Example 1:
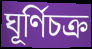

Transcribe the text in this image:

ঘূর্ণিচক্র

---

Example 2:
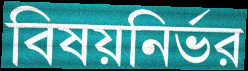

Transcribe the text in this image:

বিষয়নির্ভর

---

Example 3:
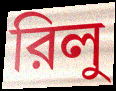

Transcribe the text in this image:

রিলু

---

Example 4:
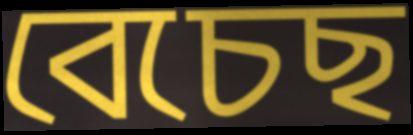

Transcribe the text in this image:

বেচেছ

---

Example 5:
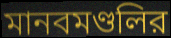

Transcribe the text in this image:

মানবমণ্ডলির